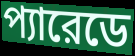
প্যারেডে